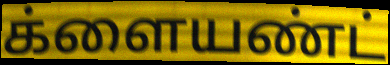
க்ளையண்ட்